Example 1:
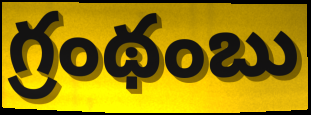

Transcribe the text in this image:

గ్రంథంబు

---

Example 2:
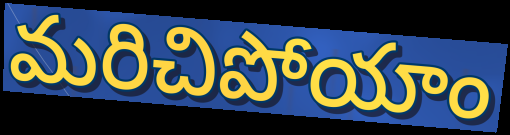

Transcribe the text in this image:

మరిచిపోయాం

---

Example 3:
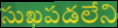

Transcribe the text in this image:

సుఖపడలేని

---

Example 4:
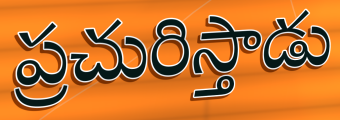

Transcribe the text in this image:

ప్రచురిస్తాడు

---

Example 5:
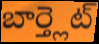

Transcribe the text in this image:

బార్త్లెట్